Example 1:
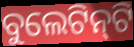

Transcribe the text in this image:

ବୁଲେଟିନ୍‍ଟି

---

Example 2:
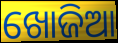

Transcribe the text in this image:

ଖୋଜିଆ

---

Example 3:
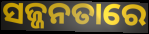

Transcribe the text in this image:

ସଜ୍ଜନତାରେ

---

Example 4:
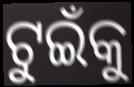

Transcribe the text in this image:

ଟୁଇଁକୁ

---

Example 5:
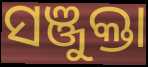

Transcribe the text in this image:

ସଞ୍ଜୁକ୍ତା